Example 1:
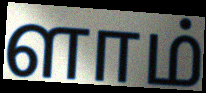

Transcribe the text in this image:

ளாம்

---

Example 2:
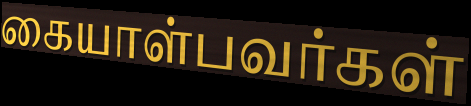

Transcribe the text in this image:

கையாள்பவர்கள்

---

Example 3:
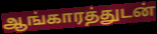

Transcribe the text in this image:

ஆங்காரத்துடன்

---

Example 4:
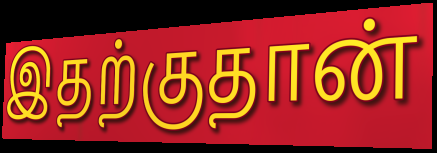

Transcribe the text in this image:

இதற்குதான்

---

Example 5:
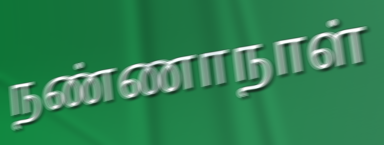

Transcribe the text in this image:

நண்ணாநாள்